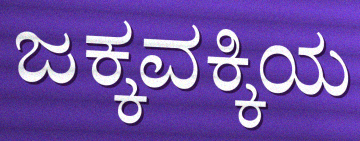
ಜಕ್ಕವಕ್ಕಿಯ